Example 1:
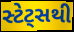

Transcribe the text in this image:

સ્ટેટ્સથી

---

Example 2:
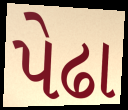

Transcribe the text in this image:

પેઢા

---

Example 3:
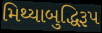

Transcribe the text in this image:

મિથ્યાબુદ્ધિરૂપ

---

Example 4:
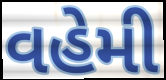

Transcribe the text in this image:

વહેમી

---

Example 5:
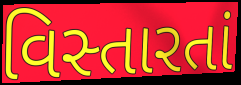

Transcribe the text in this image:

વિસ્તારતાં